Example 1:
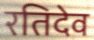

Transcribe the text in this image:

रतिदेव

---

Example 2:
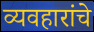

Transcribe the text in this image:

व्यवहारांचे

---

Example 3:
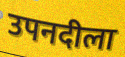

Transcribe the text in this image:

उपनदीला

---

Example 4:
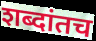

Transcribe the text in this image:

शब्दांतच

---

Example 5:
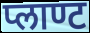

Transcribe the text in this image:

प्लाण्ट